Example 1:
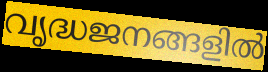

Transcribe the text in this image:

വൃദ്ധജനങ്ങളിൽ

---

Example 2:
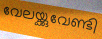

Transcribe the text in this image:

വേലയ്ക്കുവേണ്ടി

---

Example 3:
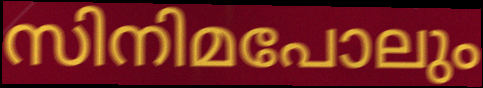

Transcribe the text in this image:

സിനിമപോലും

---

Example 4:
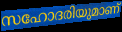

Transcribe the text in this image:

സഹോദരിയുമാണ്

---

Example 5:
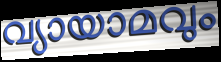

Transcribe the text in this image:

വ്യായാമവും